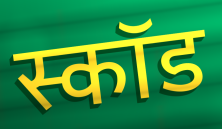
स्कॉड